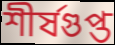
শীর্ষগুপ্ত